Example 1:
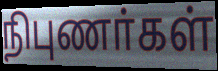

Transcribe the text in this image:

நிபுணர்கள்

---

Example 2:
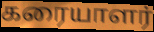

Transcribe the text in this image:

கரையாளர்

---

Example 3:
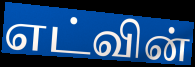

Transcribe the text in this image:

எட்வின்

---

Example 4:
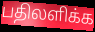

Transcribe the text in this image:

பதிலளிக்க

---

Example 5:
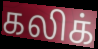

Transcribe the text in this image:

கலிக்